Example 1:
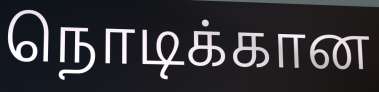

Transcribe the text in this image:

நொடிக்கான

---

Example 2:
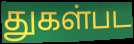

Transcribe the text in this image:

துகள்பட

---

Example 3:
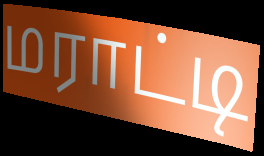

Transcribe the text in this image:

மராட்டி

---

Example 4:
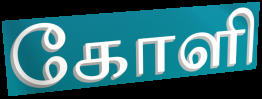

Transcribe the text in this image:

கோளி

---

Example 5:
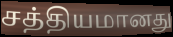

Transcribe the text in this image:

சத்தியமானது